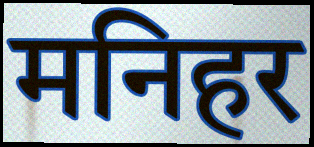
मनिहर